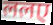
ललए